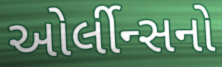
ઓર્લીન્સનો